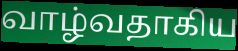
வாழ்வதாகிய